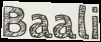
Baali